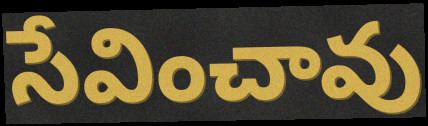
సేవించావు